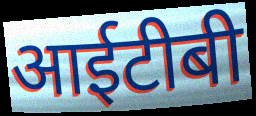
आईटीबी